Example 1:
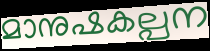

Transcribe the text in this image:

മാനുഷകല്പന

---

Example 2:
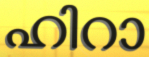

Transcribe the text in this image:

ഹിറാ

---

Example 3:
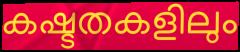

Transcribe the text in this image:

കഷ്ടതകളിലും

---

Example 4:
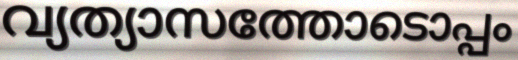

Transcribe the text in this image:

വ്യത്യാസത്തോടൊപ്പം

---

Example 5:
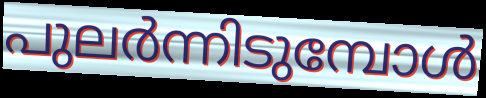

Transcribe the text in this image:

പുലർന്നിടുമ്പോൾ